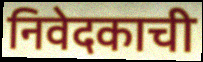
निवेदकाची